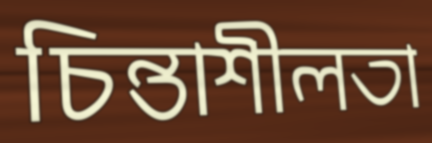
চিন্তাশীলতা